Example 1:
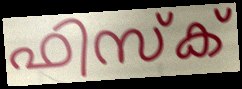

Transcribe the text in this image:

ഫിസ്ക്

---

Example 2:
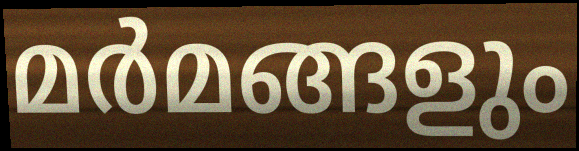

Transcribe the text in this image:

മർമങ്ങളും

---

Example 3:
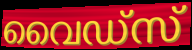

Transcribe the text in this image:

വൈഡ്സ്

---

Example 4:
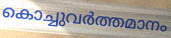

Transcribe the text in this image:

കൊച്ചുവർത്തമാനം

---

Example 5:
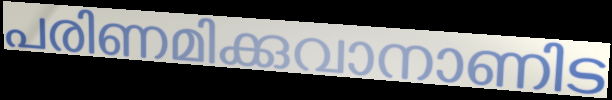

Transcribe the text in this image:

പരിണമിക്കുവാനാണിട